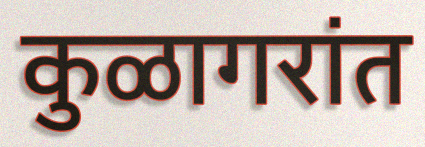
कुळागरांत